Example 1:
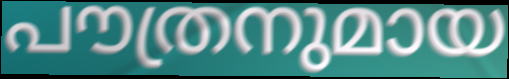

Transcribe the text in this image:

പൗത്രനുമായ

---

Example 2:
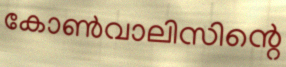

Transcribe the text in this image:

കോൺവാലിസിന്റെ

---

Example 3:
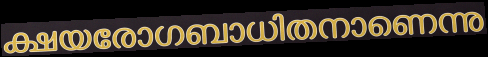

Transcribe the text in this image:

ക്ഷയരോഗബാധിതനാണെന്നു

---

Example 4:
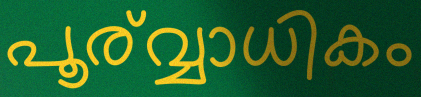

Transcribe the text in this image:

പൂര്വ്വാധികം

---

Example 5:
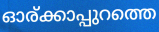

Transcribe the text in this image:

ഓര്ക്കാപ്പുറത്തെ